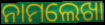
ନାମଲେଖା